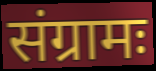
संग्रामः